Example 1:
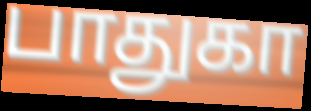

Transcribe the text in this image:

பாதுகா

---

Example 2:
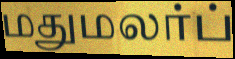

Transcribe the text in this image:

மதுமலர்ப்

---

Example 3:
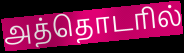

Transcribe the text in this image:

அத்தொடரில்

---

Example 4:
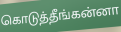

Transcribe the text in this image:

கொடுத்தீங்கன்னா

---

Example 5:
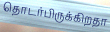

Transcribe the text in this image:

தொடர்பிருக்கிறதா